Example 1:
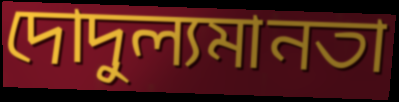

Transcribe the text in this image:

দোদুল্যমানতা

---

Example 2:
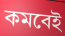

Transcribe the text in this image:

কমবেই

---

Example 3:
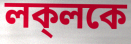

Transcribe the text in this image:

লক্‌লকে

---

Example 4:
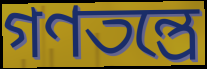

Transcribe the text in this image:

গণতন্ত্রে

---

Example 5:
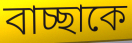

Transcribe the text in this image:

বাচ্ছাকে